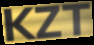
KZT